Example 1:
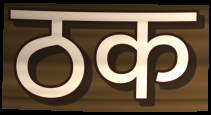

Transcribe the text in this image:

ठक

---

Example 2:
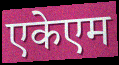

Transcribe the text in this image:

एकेएम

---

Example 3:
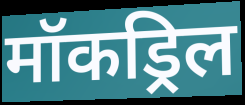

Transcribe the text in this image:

मॉकड्रिल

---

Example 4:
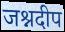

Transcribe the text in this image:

जश्नदीप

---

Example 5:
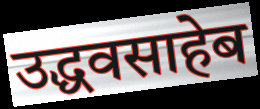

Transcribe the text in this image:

उद्धवसाहेब